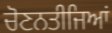
ਚੋਣਨਤੀਜਿਆਂ